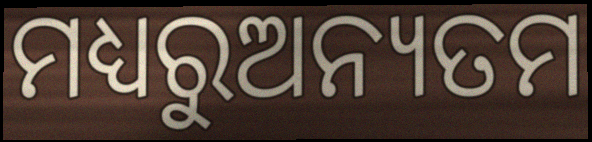
ମଧ୍ୟରୁଅନ୍ୟତମ